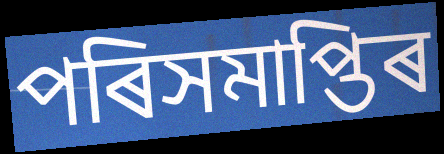
পৰিসমাপ্তিৰ